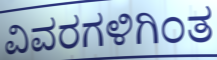
ವಿವರಗಳಿಗಿಂತ